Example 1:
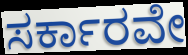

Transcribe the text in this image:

ಸರ್ಕಾರವೇ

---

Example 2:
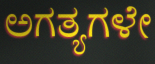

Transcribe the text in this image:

ಅಗತ್ಯಗಳೇ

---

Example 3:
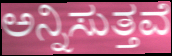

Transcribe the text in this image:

ಅನ್ನಿಸುತ್ತವೆ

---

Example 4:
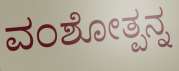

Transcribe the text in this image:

ವಂಶೋತ್ಪನ್ನ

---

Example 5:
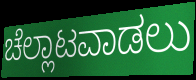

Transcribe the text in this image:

ಚೆಲ್ಲಾಟವಾಡಲು